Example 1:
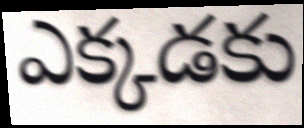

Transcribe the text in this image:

ఎక్కడకు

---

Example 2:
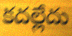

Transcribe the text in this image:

కదల్లేదు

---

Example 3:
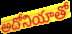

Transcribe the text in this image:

అదోనియాతో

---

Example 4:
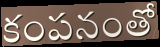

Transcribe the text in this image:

కంపనంతో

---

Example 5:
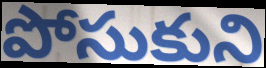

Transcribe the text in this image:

పోసుకుని